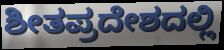
ಶೀತಪ್ರದೇಶದಲ್ಲಿ